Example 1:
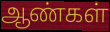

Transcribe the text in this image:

ஆண்கள்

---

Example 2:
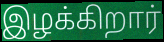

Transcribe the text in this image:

இழக்கிறார்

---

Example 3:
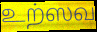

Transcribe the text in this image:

உற்ஸவ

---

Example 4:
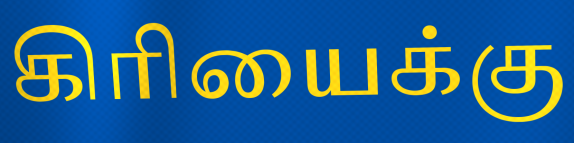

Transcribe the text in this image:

கிரியைக்கு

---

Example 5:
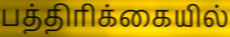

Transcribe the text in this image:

பத்திரிக்கையில்